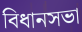
বিধানসভা